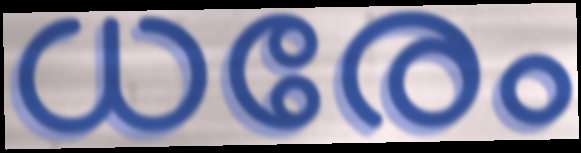
ധരേം